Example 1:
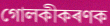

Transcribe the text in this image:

গোলকীকৰণক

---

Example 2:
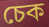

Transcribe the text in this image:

চেক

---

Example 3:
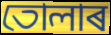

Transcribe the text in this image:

তোলাৰ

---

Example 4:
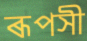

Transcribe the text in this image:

ৰূপসী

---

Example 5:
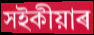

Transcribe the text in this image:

সইকীয়াৰ